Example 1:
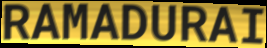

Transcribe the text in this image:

RAMADURAI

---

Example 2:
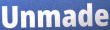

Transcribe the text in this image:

Unmade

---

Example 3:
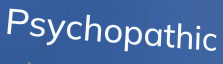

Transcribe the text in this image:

Psychopathic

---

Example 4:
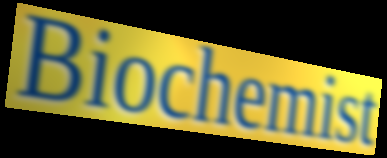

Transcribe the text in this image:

Biochemist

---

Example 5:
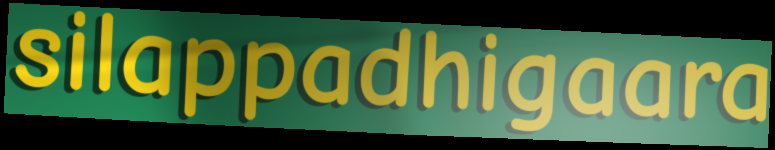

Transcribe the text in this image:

silappadhigaara